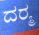
ದರ‍್ಮ